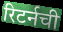
रिटर्नची